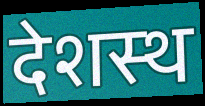
देशस्थ